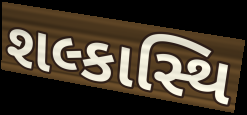
શલ્કાસ્થિ